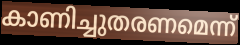
കാണിച്ചുതരണമെന്ന്